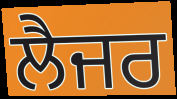
ਲੈਜਰ